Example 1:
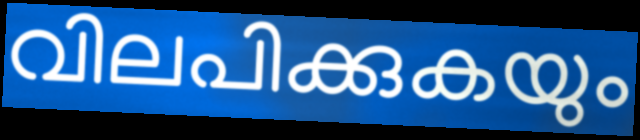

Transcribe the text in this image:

വിലപിക്കുകയും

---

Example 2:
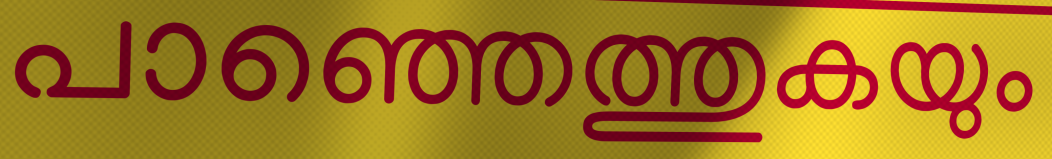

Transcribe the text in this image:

പാഞ്ഞെത്തുകയും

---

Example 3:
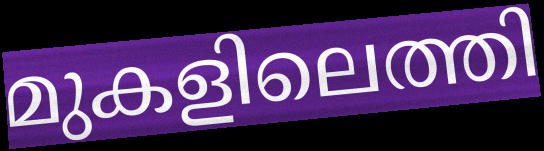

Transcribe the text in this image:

മുകളിലെത്തി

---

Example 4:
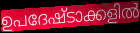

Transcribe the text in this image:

ഉപദേഷ്ടാക്കളിൽ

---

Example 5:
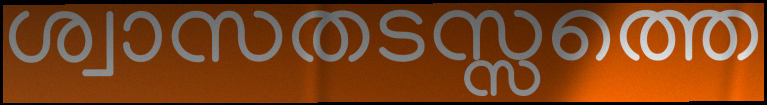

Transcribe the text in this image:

ശ്വാസതടസ്സത്തെ